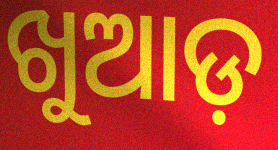
ଖୁଆଡ଼